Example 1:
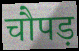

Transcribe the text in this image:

चौपड़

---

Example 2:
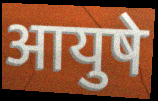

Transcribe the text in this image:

आयुषे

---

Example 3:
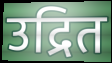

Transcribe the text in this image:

उद्रित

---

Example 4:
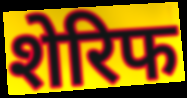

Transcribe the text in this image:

शेरिफ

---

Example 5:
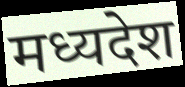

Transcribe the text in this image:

मध्यदेश